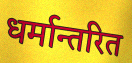
धर्मान्तरित